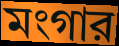
মংগার